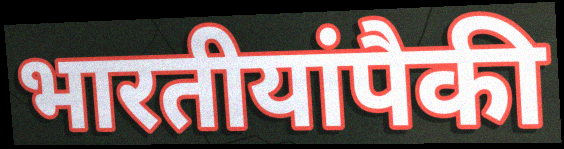
भारतीयांपैकी